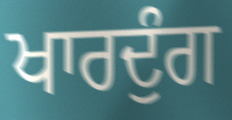
ਖਾਰਦੁੰਗ